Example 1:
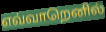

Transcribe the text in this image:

எவ்வாறெனில்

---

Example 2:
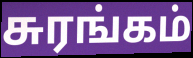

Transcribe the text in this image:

சுரங்கம்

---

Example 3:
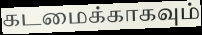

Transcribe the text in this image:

கடமைக்காகவும்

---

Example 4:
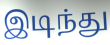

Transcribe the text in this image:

இடிந்து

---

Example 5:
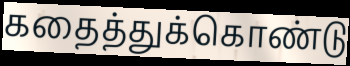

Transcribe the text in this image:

கதைத்துக்கொண்டு